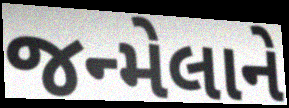
જન્મેલાને